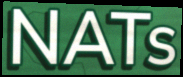
NATs